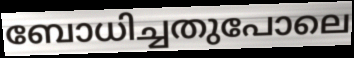
ബോധിച്ചതുപോലെ